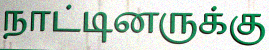
நாட்டினருக்கு